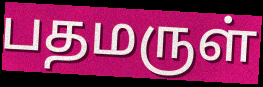
பதமருள்